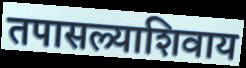
तपासल्याशिवाय